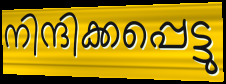
നിന്ദിക്കപ്പെട്ടു